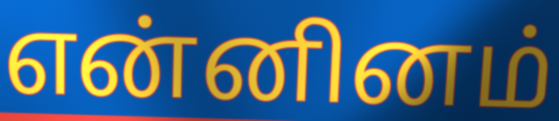
என்னினம்